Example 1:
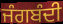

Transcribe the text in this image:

ਜੰਗਬੰਦੀ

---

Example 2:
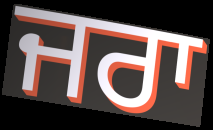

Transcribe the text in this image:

ਜਰਾ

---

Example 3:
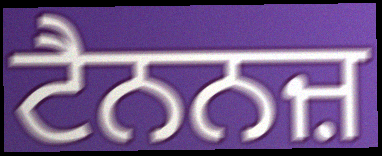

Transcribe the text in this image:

ਟੈਨਨਜ਼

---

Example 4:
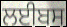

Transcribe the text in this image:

ਲਈਬਸ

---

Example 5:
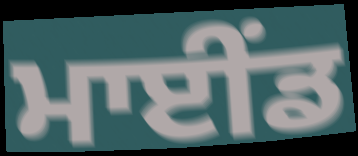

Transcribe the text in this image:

ਮਾਈਂਡ